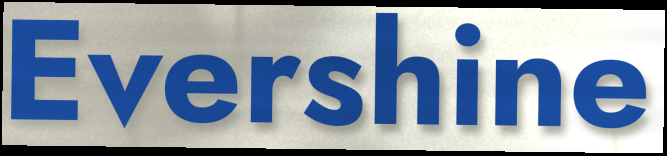
Evershine